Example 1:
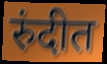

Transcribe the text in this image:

रुंदीत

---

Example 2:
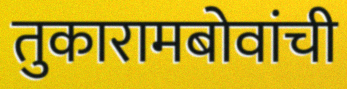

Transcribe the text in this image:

तुकारामबोवांची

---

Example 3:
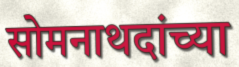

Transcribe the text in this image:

सोमनाथदांच्या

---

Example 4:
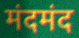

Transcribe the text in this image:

मंदमंद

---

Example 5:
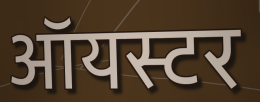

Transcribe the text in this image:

ऑयस्टर